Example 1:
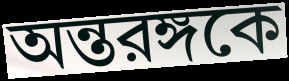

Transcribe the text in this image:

অন্তরঙ্গকে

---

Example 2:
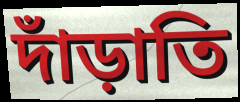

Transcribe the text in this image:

দাঁড়াতি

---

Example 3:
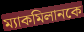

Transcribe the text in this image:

ম্যাকমিলানকে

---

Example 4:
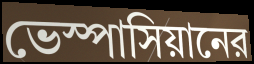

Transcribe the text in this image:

ভেস্পাসিয়ানের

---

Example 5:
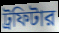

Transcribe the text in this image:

ট্রফিটার